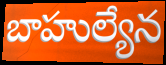
బాహుల్యేన